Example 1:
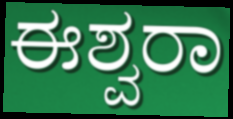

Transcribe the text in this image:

ಈಶ್ವರಾ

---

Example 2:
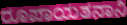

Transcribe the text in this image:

ರೂಪಾಯತನಾನಿ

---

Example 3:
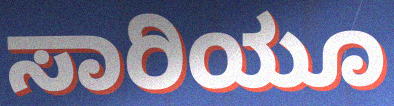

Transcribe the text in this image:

ಸಾರಿಯೂ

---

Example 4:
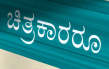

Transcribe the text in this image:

ಚಿತ್ರಕಾರರೂ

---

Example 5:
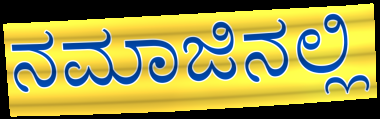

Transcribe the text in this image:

ನಮಾಜಿನಲ್ಲಿ